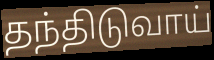
தந்திடுவாய்